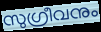
സുഗ്രീവനും